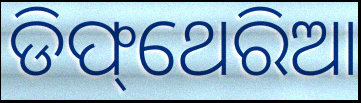
ଡିଫ୍‌ଥେରିଆ